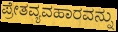
ಪ್ರೇತವ್ಯವಹಾರವನ್ನು